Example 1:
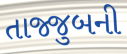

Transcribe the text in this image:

તાજ્જુબની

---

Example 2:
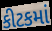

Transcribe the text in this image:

કીટકમાં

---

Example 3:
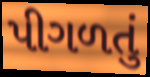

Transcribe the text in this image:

પીગળતું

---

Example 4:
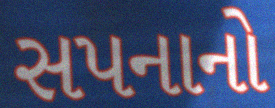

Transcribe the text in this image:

સપનાનો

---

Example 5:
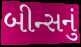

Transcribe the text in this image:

બીન્સનું